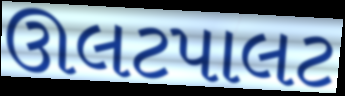
ઊલટપાલટ